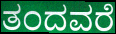
ತಂದವರೆ